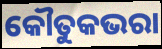
କୌତୁକଭରା